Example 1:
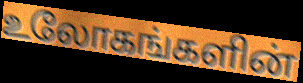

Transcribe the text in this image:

உலோகங்களின்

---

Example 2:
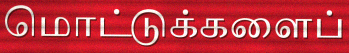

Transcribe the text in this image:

மொட்டுக்களைப்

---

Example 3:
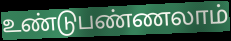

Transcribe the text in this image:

உண்டுபண்ணலாம்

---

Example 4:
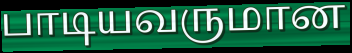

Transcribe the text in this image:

பாடியவருமான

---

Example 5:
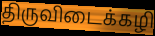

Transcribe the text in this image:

திருவிடைக்கழி